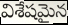
విశేషమైన